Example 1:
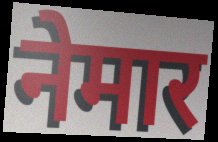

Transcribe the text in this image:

नेमार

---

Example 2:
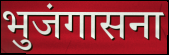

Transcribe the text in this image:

भुजंगासना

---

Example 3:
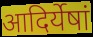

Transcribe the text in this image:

आदिर्येषां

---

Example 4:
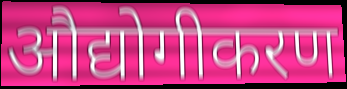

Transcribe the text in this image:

औद्योगीकरण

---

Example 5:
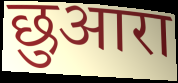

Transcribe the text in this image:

छुआरा